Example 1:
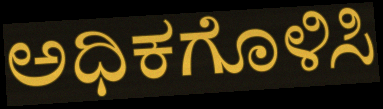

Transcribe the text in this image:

ಅಧಿಕಗೊಳಿಸಿ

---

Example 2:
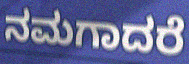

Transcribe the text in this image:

ನಮಗಾದರೆ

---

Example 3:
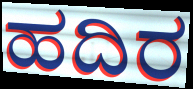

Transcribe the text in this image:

ಹದಿರ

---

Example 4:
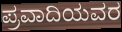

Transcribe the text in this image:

ಪ್ರವಾದಿಯವರ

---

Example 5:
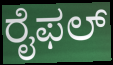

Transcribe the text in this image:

ರೈಫಲ್